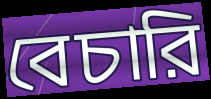
বেচারি